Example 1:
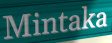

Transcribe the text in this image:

Mintaka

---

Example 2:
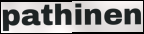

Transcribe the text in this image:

pathinen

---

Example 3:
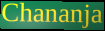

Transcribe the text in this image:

Chananja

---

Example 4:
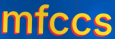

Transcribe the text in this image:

mfccs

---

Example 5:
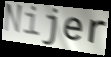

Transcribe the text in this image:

Nijer